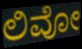
ಲಿವೋ